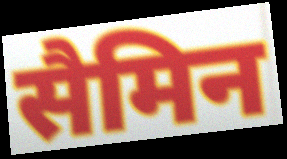
सैमिन